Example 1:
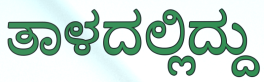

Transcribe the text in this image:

ತಾಳದಲ್ಲಿದ್ದು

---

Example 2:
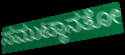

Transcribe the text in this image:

ಸಮುಟ್ಠಾನತೋ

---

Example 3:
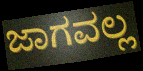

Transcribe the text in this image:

ಜಾಗವಲ್ಲ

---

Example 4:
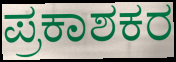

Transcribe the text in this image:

ಪ್ರಕಾಶಕರ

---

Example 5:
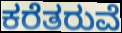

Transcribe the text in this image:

ಕರೆತರುವೆ